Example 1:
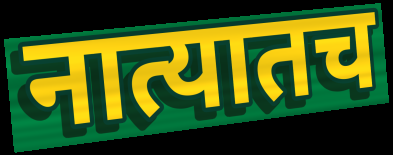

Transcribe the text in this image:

नात्यातच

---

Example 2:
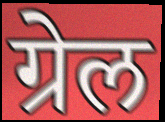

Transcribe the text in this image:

ग्रेल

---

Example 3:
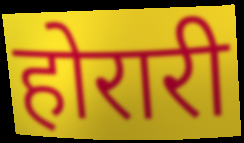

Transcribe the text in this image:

होरारी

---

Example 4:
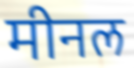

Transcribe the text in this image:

मीनल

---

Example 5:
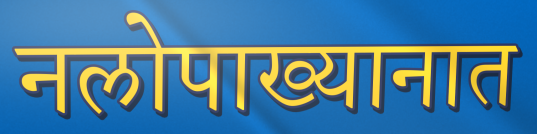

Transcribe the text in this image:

नलोपाख्यानात